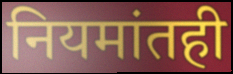
नियमांतही